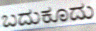
ಬದುಕೂದು